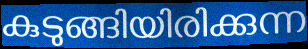
കുടുങ്ങിയിരിക്കുന്ന